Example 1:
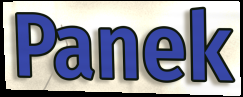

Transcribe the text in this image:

Panek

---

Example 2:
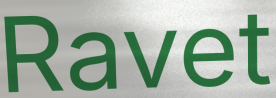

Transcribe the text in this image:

Ravet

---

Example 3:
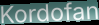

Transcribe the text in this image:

Kordofan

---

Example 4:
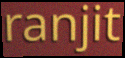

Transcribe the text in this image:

ranjit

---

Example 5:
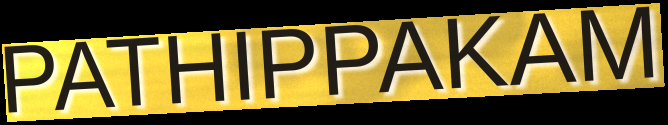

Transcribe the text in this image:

PATHIPPAKAM